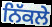
ਨਿੱਕਲੇ